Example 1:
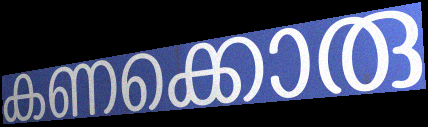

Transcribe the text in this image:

കണക്കൊരു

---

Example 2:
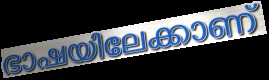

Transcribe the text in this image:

ഭാഷയിലേക്കാണ്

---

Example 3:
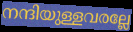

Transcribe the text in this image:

നന്ദിയുള്ളവരല്ലേ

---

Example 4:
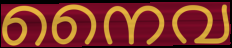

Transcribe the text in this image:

നൈവ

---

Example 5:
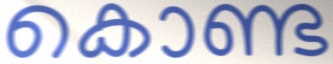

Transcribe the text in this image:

കൊണ്ട